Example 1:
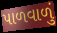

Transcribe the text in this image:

પાળવાળું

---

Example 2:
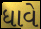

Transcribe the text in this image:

ધાવે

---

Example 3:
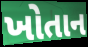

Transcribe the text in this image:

ખોતાન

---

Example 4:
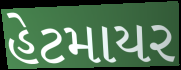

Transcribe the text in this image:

હેટમાયર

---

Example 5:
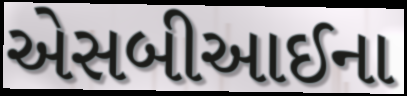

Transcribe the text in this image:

એસબીઆઈના